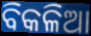
ବିକଳିଆ